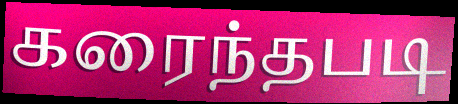
கரைந்தபடி